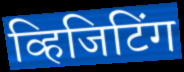
व्हिजिटिंग